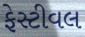
ફેસ્ટીવલ